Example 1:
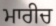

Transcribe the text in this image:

ਮਾਰੀਚ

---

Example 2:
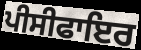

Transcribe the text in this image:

ਪੀਸੀਫਾਇਰ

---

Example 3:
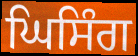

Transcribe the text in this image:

ਘਿਸਿੰਗ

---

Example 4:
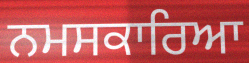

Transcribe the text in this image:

ਨਮਸਕਾਰਿਆ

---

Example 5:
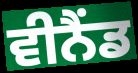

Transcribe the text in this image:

ਵੀਨੈਂਡ